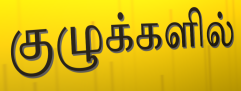
குழுக்களில்